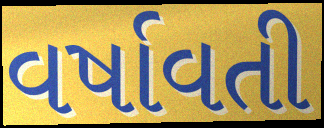
વર્ષાવતી